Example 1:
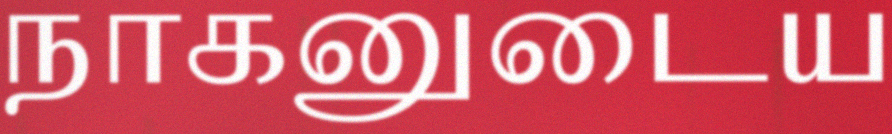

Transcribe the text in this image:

நாகனுடைய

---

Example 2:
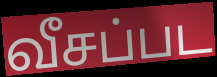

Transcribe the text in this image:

வீசப்பட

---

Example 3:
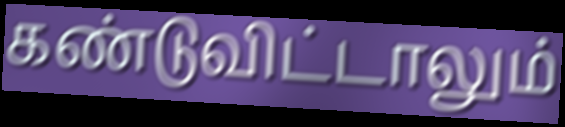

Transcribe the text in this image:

கண்டுவிட்டாலும்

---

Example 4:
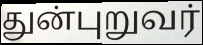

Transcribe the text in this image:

துன்புறுவர்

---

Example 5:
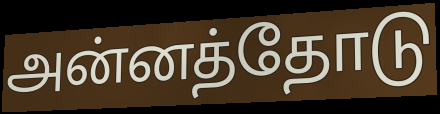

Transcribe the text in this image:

அன்னத்தோடு